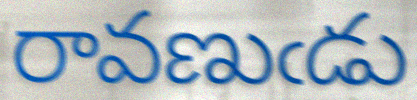
రావణుఁడు